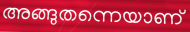
അങ്ങുതന്നെയാണ്